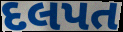
દલપત